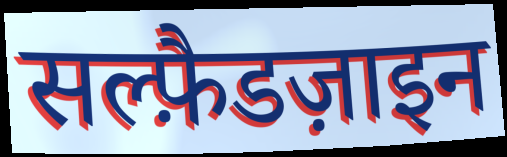
सल्फ़ैडज़ाइन